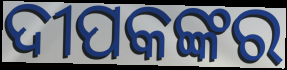
ଦୀପକଙ୍କର